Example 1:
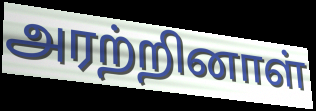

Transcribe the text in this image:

அரற்றினாள்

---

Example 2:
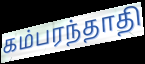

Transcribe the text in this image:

கம்பரந்தாதி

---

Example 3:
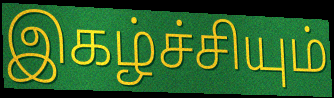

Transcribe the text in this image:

இகழ்ச்சியும்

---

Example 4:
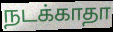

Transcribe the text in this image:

நடக்காதா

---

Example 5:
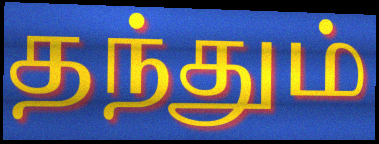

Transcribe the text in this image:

தந்தும்